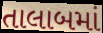
તાલાબમાં